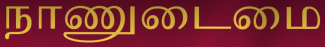
நாணுடைமை